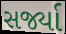
સર્જ્યા